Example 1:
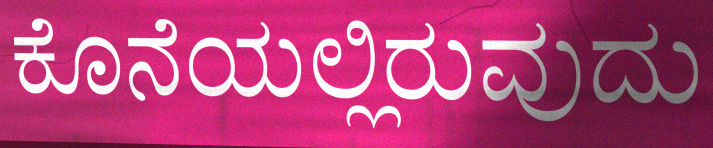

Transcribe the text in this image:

ಕೊನೆಯಲ್ಲಿರುವುದು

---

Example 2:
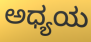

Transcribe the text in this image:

ಅಧ್ಯಯ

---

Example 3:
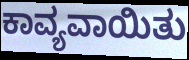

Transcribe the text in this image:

ಕಾವ್ಯವಾಯಿತು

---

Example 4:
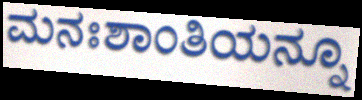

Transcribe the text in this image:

ಮನಃಶಾಂತಿಯನ್ನೂ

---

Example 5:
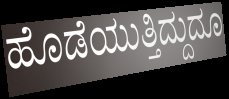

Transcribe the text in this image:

ಹೊಡೆಯುತ್ತಿದ್ದುದೂ